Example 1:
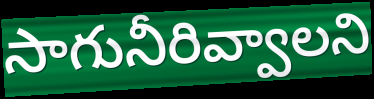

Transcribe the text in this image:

సాగునీరివ్వాలని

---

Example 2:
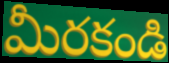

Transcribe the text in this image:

మీరకండి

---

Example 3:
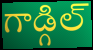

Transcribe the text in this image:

గాడ్గిల్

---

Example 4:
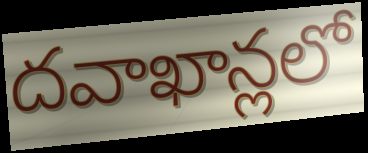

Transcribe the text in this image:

దవాఖాన్లలో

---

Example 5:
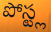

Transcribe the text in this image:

పోస్ట్ల